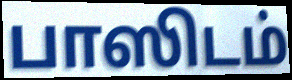
பாஸிடம்